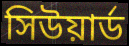
সিউয়ার্ড